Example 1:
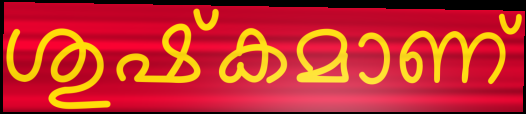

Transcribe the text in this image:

ശുഷ്‌കമാണ്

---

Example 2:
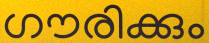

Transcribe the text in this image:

ഗൗരിക്കും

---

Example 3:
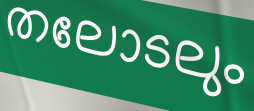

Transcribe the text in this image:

തലോടലും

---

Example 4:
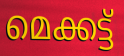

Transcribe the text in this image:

മെക്കട്ട്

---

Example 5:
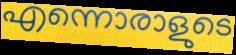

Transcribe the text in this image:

എന്നൊരാളുടെ